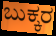
ಬುಕ್ಕರ